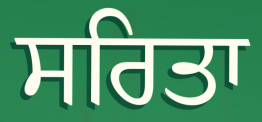
ਸਰਿਤਾ